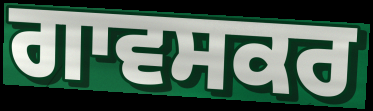
ਗਾਵਸਕਰ